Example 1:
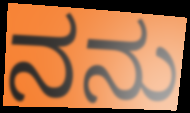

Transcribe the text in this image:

ನನು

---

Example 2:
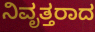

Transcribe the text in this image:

ನಿವೃತ್ತರಾದ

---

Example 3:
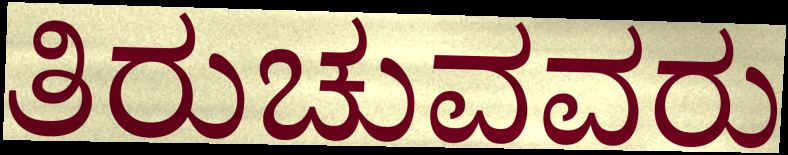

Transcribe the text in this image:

ತಿರುಚುವವರು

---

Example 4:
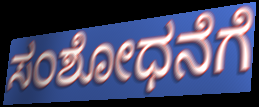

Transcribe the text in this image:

ಸಂಶೋಧನೆಗೆ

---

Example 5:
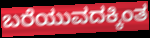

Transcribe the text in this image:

ಬರೆಯುವದಕ್ಕಿಂತ